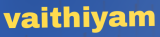
vaithiyam